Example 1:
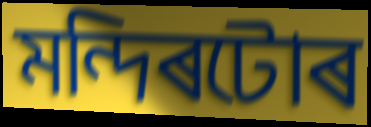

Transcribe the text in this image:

মন্দিৰটোৰ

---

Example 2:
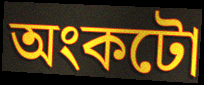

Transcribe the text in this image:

অংকটো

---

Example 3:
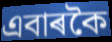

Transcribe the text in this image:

এবাৰকৈ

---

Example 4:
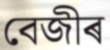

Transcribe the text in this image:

বেজীৰ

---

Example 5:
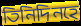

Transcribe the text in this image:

তিনিদিনহে